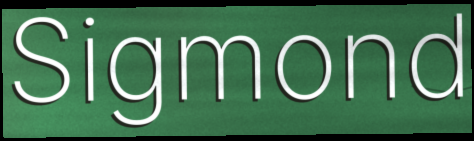
Sigmond